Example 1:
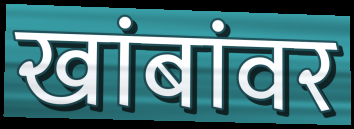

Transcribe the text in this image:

खांबांवर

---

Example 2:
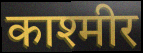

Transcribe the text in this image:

काश्मीर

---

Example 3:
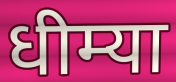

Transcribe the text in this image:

धीम्या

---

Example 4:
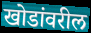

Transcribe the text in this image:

खोडांवरील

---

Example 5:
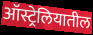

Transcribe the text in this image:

ऑस्ट्रेलियातील